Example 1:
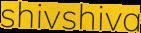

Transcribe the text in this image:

shivshiva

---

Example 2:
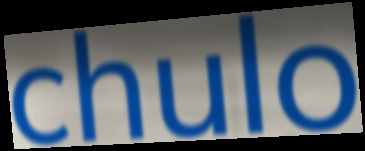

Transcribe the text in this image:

chulo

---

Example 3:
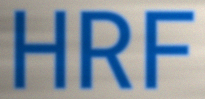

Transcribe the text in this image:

HRF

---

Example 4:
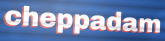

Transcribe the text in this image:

cheppadam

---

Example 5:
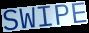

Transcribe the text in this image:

SWIPE